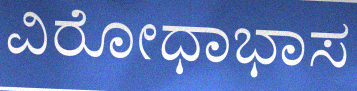
ವಿರೋಧಾಭಾಸ